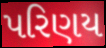
પરિણય